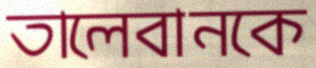
তালেবানকে